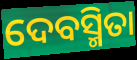
ଦେବସ୍ମିତା